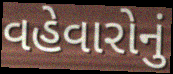
વહેવારોનું